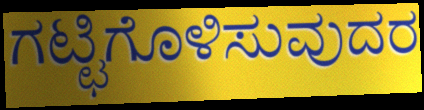
ಗಟ್ಟಿಗೊಳಿಸುವುದರ